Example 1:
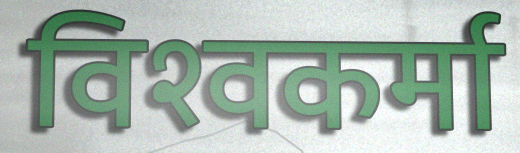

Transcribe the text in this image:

विश्वकर्मा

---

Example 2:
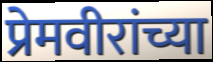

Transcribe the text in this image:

प्रेमवीरांच्या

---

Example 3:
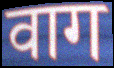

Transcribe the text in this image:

वाग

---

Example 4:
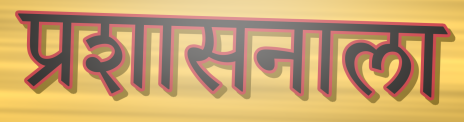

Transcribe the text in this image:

प्रशासनाला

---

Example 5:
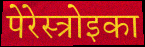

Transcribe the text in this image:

पेरेस्त्रोइका